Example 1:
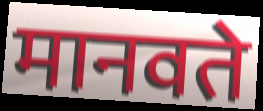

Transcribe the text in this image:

मानवते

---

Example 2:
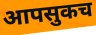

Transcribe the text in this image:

आपसुकच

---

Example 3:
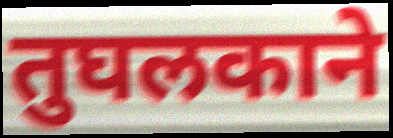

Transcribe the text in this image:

तुघलकाने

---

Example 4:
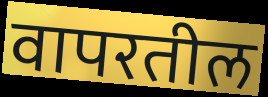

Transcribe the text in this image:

वापरतील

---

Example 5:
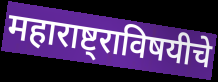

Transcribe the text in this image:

महाराष्ट्राविषयीचे